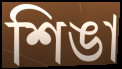
শিঙা